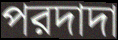
পরদাদা